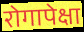
रोगापेक्षा